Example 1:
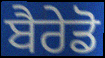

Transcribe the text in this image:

ਬੈਰੇਡੋ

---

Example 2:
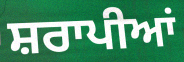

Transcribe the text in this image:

ਸ਼ਰਾਪੀਆਂ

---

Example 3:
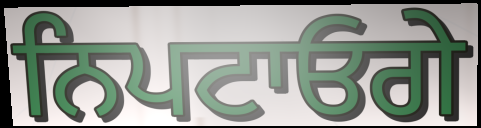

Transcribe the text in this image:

ਨਿਪਟਾਓਗੇ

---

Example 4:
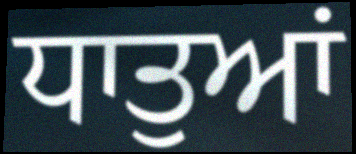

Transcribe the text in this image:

ਧਾਤੁਆਂ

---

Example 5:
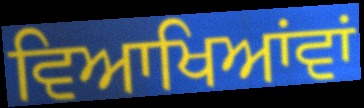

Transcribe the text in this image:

ਵਿਆਖਿਆਂਵਾਂ